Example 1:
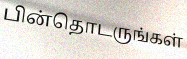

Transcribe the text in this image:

பின்தொடருங்கள்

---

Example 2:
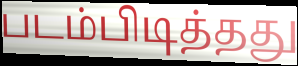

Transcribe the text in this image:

படம்பிடித்தது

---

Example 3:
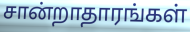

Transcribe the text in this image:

சான்றாதாரங்கள்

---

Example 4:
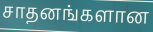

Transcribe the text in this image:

சாதனங்களான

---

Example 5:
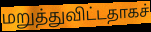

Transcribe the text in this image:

மறுத்துவிட்டதாகச்